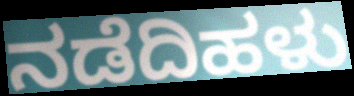
ನಡೆದಿಹಳು